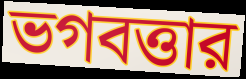
ভগবত্তার